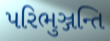
પરિભુઞ્જન્તિ